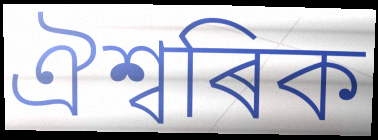
ঐশ্বৰিক